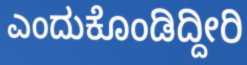
ಎಂದುಕೊಂಡಿದ್ದೀರಿ